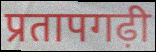
प्रतापगढ़ी